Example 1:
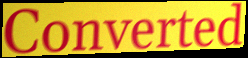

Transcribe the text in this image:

Converted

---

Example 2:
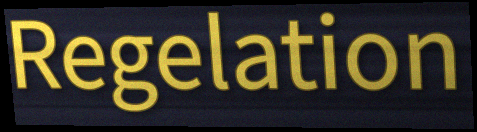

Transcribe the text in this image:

Regelation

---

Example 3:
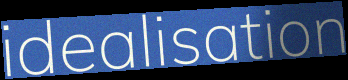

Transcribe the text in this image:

idealisation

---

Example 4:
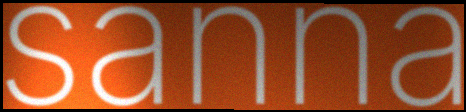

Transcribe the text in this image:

sanna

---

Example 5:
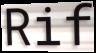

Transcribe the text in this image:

Rif